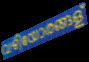
വഴിയോരങ്ങള്